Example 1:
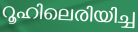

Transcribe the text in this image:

റൂഹിലെരിയിച്ച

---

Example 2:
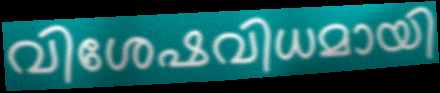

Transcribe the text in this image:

വിശേഷവിധമായി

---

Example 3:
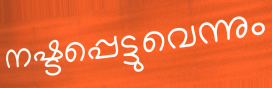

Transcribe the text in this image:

നഷ്ടപ്പെട്ടുവെന്നും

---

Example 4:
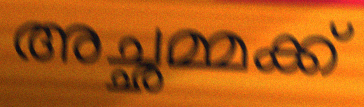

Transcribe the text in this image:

അച്ഛമ്മക്ക്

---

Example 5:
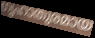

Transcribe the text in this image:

ഗൃഹാതുരമായ